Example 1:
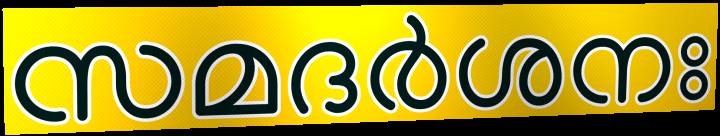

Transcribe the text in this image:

സമദർശനഃ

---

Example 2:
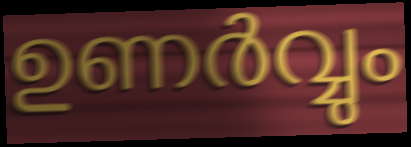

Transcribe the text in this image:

ഉണർവ്വും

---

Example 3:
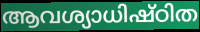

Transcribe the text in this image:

ആവശ്യാധിഷ്ഠിത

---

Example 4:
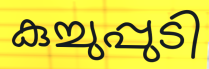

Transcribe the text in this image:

കുച്ചുപ്പുടി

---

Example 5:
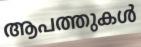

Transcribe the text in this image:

ആപത്തുകൾ